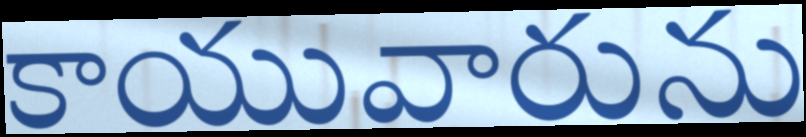
కాయువారును